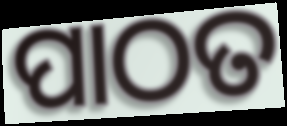
ପାଠତ